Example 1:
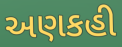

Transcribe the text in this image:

અણકહી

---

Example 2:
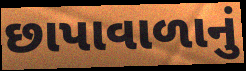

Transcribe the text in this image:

છાપાવાળાનું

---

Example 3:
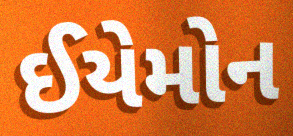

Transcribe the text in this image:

ઈયેમોન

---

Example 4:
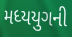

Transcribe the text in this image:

મધ્યયુગની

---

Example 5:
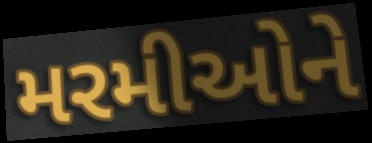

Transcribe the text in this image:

મરમીઓને